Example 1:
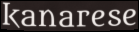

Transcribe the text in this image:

kanarese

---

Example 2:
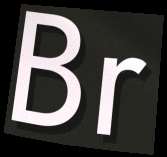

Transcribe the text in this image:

Br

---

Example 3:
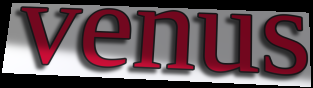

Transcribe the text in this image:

venus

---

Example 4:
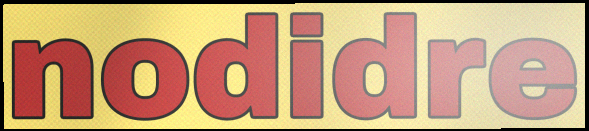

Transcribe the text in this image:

nodidre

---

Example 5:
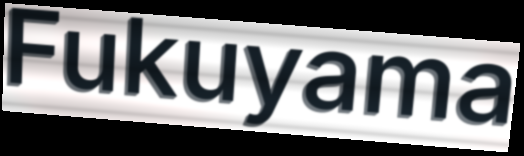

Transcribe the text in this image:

Fukuyama